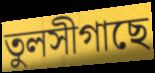
তুলসীগাছে